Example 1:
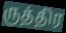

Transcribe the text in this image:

ருத்திர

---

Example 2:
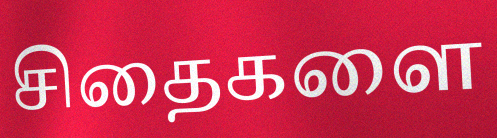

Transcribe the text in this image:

சிதைகளை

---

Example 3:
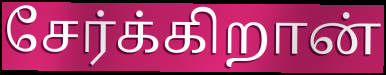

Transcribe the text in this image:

சேர்க்கிறான்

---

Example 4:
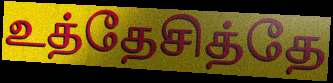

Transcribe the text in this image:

உத்தேசித்தே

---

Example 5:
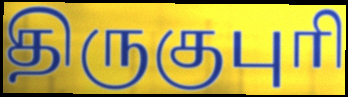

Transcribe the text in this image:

திருகுபுரி